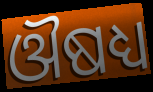
ଔଷଧ୍ୟ